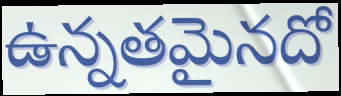
ఉన్నతమైనదో